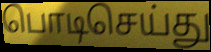
பொடிசெய்து